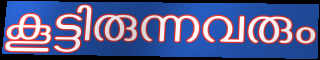
കൂട്ടിരുന്നവരും